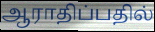
ஆராதிப்பதில்